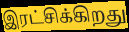
இரட்சிக்கிறது